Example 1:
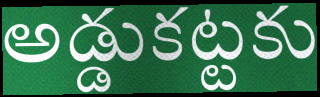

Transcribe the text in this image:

అడ్డుకట్టకు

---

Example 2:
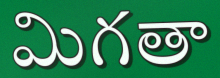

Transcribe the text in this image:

మిగతా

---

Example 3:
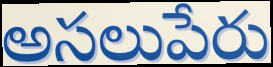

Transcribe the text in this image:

అసలుపేరు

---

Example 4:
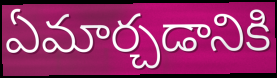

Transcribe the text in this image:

ఏమార్చడానికి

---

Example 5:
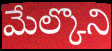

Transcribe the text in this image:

మేల్కొని